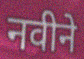
नवीने